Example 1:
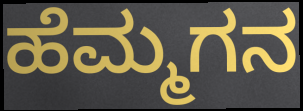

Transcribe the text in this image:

ಹೆಮ್ಮಗನ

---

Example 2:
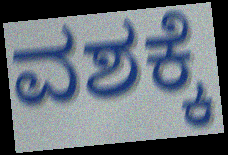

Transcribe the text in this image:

ವಶಕ್ಕೆ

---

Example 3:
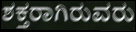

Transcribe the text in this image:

ಶಕ್ತರಾಗಿರುವರು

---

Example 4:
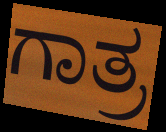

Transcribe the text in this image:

ಗಾತ್ರ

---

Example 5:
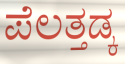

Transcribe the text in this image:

ಪೆಲತ್ತಡ್ಕ